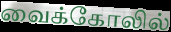
வைக்கோலில்